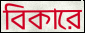
বিকারে